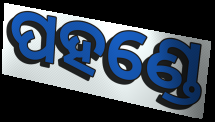
ପହଣ୍ଡେ